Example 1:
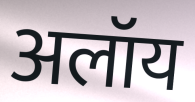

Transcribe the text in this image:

अलॉय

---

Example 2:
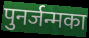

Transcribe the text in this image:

पुनर्जन्मका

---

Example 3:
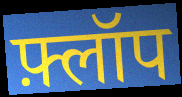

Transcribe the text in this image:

फ़्लॉप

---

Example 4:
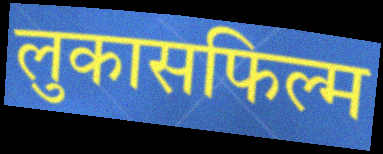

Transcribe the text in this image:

लुकासफिल्म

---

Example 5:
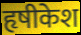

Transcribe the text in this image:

हृषीकेश